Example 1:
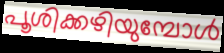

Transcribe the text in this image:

പൂശിക്കഴിയുമ്പോൾ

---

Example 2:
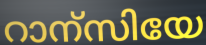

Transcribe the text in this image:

റാന്സിയേ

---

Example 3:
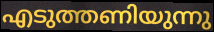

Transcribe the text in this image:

എടുത്തണിയുന്നു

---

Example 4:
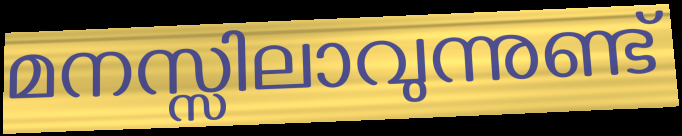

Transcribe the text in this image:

മനസ്സിലാവുന്നുണ്ട്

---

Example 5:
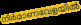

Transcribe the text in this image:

നിർമാണവേളയിൽ